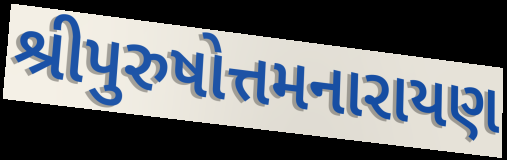
શ્રીપુરુષોત્તમનારાયણ